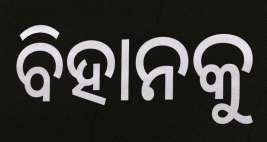
ବିହାନକୁ